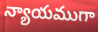
న్యాయముగా